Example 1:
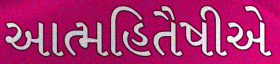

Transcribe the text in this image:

આત્મહિતૈષીએ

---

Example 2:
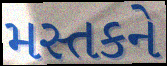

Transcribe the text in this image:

મસ્તકને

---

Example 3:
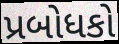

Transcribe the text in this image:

પ્રબોધકો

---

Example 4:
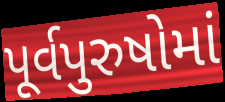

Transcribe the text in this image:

પૂર્વપુરુષોમાં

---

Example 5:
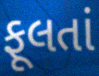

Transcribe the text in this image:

ફૂલતાં